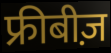
फ्रीबीज़